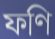
ফণি